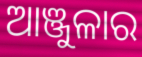
ଆଞ୍ଜୁଳାର